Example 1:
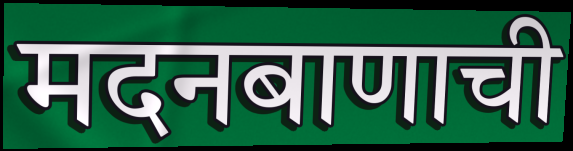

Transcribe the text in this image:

मदनबाणाची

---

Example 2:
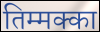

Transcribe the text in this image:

तिम्मक्का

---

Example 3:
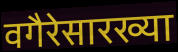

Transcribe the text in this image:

वगैरेसारख्या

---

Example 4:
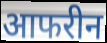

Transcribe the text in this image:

आफरीन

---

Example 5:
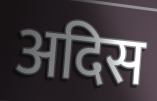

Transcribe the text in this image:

अदिस